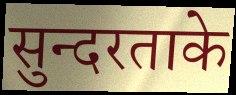
सुन्दरताके